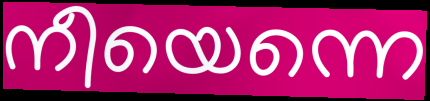
നീയെന്നെ